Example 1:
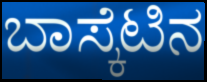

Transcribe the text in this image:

ಬಾಸ್ಕೆಟಿನ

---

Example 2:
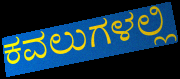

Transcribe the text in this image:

ಕವಲುಗಳಲ್ಲಿ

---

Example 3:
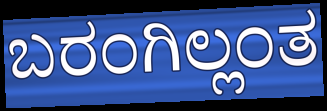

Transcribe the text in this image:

ಬರಂಗಿಲ್ಲಂತ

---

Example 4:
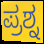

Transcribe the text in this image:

ಪ್ರಶ್ನ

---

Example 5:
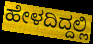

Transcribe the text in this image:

ಹೇಳದಿದ್ದಲ್ಲಿ